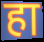
हा